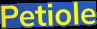
Petiole